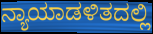
ನ್ಯಾಯಾಡಳಿತದಲ್ಲಿ